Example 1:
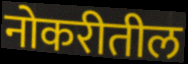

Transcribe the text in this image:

नोकरीतील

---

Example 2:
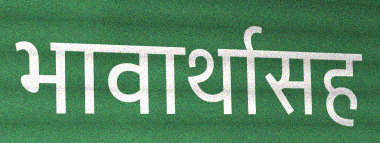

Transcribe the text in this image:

भावार्थासह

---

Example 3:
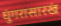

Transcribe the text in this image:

घुंगरासारखं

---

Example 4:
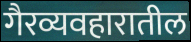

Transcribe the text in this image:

गैरव्यवहारातील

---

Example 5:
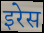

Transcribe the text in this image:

इरेस